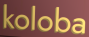
koloba